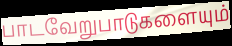
பாடவேறுபாடுகளையும்